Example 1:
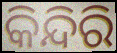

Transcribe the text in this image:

କିନ୍ଦିରି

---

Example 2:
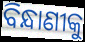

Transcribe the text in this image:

ବିନ୍ଧାଣୀକୁ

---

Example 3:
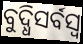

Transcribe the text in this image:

ବୁଦ୍ଧିସର୍ବସ୍ୱ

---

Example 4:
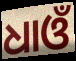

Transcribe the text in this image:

ଧାଓଁ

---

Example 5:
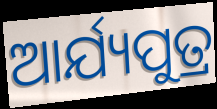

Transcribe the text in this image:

ଆର୍ଯ୍ୟପୁତ୍ର